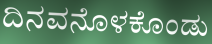
ದಿನವನೊಳಕೊಂಡು